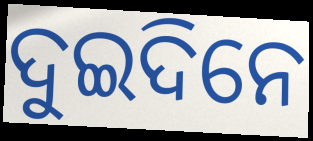
ଦୁଇଦିନେ